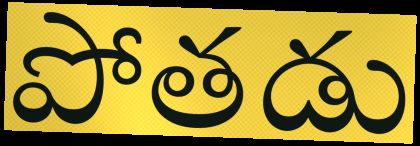
పోతడు